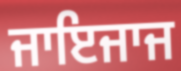
ਜਾਇਜਾਜ